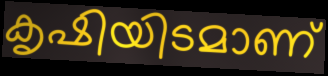
കൃഷിയിടമാണ്